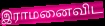
இராமனைவிட